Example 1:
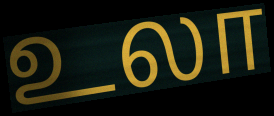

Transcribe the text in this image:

உலா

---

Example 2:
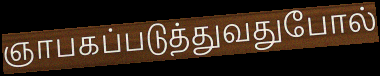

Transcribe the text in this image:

ஞாபகப்படுத்துவதுபோல்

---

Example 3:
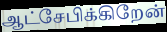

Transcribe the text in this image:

ஆட்சேபிக்கிறேன்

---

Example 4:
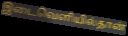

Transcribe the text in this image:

இடைவெளியில்தான்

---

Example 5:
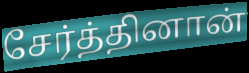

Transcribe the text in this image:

சேர்த்தினான்